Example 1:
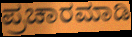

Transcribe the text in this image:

ಪ್ರಚಾರಮಾಡಿ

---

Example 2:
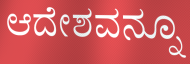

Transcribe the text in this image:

ಆದೇಶವನ್ನೂ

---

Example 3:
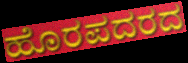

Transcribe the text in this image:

ಹೊರಪದರದ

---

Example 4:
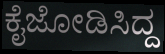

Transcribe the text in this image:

ಕೈಜೋಡಿಸಿದ್ದ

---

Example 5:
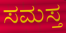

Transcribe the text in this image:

ಸಮಸ್ತ